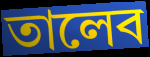
তালেব